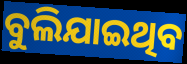
ବୁଲିଯାଇଥିବ